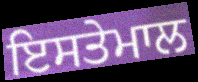
ਇਸਤੇਮਾਲ